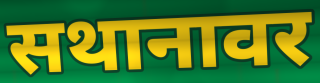
सथानावर